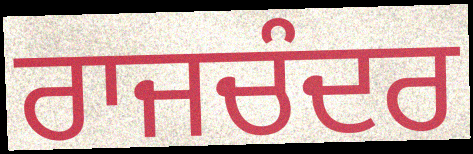
ਰਾਜਚੰਦਰ